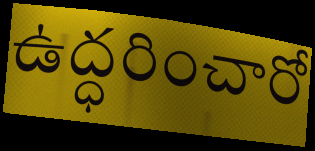
ఉద్ధరించారో